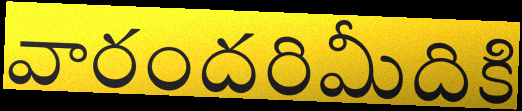
వారందరిమీదికి